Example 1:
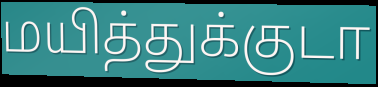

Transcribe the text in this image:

மயித்துக்குடா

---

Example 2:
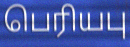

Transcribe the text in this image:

பெரியபு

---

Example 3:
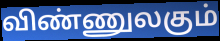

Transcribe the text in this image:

விண்ணுலகும்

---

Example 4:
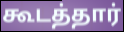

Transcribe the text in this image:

கூடத்தார்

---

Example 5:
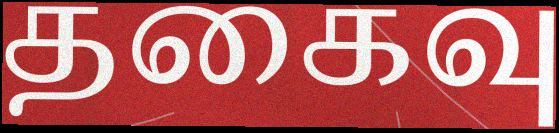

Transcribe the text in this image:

தகைவு